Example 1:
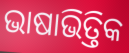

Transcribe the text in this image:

ଭାଷାଭିତ୍ତିକ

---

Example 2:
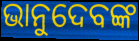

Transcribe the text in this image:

ଭାନୁଦେବଙ୍କ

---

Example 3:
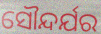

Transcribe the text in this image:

ସୌନ୍ଦର୍ଯର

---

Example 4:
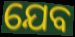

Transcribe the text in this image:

ଯେବ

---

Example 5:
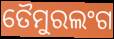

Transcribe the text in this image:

ତୈମୁରଲଂଗ